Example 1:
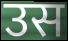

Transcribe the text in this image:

उस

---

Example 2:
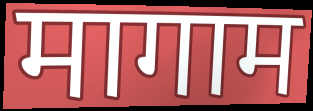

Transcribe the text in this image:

मागाम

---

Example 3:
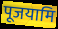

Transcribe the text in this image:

पूजयामि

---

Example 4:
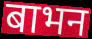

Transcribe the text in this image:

बाभन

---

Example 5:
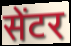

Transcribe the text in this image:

सेंटर